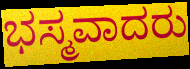
ಭಸ್ಮವಾದರು